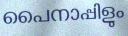
പൈനാപ്പിളും